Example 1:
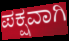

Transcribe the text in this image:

ಪಕ್ಷವಾಗಿ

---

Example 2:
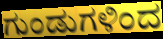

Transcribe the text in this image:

ಗುಂಡುಗಳಿಂದ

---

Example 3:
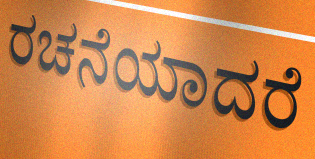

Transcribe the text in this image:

ರಚನೆಯಾದರೆ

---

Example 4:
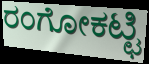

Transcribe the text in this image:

ರಂಗೋಕಟ್ಟಿ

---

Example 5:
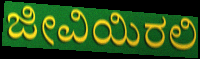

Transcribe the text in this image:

ಜೀವಿಯಿರಲಿ